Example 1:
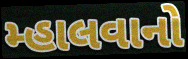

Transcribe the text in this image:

મ્હાલવાનો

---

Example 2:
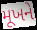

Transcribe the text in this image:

મૂખને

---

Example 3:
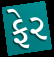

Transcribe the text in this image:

ફેર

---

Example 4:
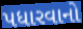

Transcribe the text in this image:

પધારવાનો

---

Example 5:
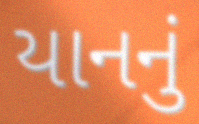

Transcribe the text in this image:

યાનનું